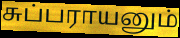
சுப்பராயனும்